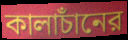
কালাচাঁনের